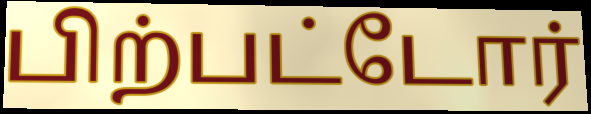
பிற்பட்டோர்